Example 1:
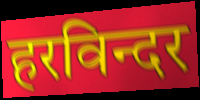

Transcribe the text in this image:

हरविन्दर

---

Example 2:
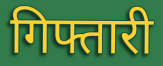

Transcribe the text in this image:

गिफ्तारी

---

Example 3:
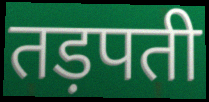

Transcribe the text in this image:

तड़पती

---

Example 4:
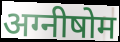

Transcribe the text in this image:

अग्नीषोम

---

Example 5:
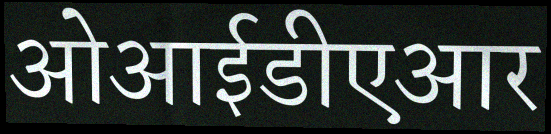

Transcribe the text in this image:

ओआईडीएआर